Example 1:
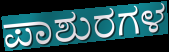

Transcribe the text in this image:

ಪಾಶುರಗಳ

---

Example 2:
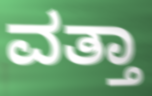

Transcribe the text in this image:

ವತ್ತಾ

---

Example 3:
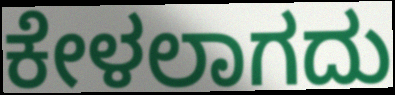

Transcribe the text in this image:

ಕೇಳಲಾಗದು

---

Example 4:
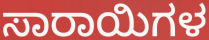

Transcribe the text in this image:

ಸಾರಾಯಿಗಳ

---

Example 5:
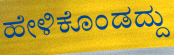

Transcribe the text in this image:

ಹೇಳಿಕೊಂಡದ್ದು